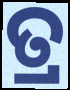
ତ୍ର